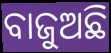
ବାଜୁଅଛି